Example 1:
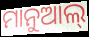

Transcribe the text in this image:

ମାନୁଆଲ୍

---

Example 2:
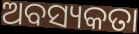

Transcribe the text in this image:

ଅବସ୍ୟକତା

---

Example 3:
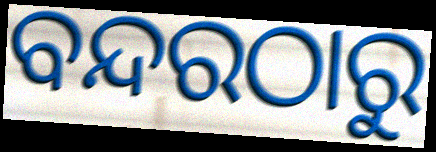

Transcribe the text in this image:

ବନ୍ଦରଠାରୁ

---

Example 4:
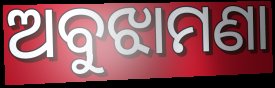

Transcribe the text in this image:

ଅବୁଝାମଣା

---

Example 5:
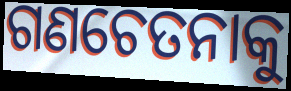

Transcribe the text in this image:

ଗଣଚେତନାକୁ